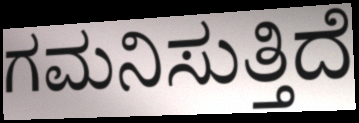
ಗಮನಿಸುತ್ತಿದೆ